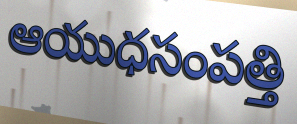
ఆయుధసంపత్తి